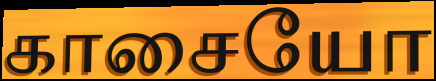
காசையோ